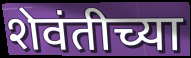
शेवंतीच्या